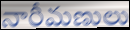
నారీమణులు